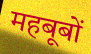
महबूबों